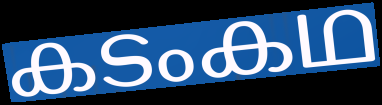
കടംകഥ